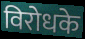
विरोधके